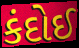
કંદોઈ